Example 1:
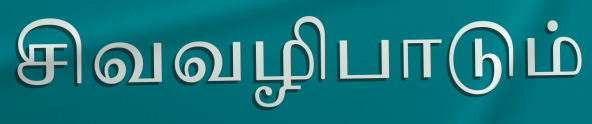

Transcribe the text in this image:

சிவவழிபாடும்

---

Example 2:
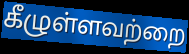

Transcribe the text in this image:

கீழுள்ளவற்றை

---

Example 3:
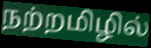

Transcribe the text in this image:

நற்றமிழில்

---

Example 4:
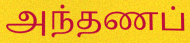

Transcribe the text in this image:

அந்தணப்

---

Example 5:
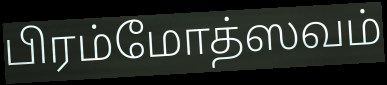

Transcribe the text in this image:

பிரம்மோத்ஸவம்